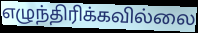
எழுந்திரிக்கவில்லை